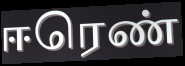
ஈரெண்